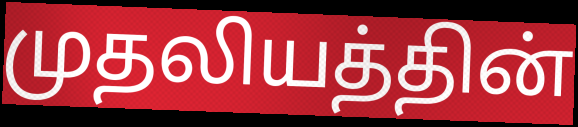
முதலியத்தின்